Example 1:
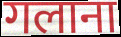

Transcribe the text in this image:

गलाना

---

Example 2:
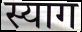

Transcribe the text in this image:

स्याग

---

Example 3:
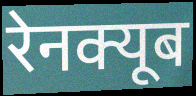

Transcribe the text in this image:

रेनक्यूब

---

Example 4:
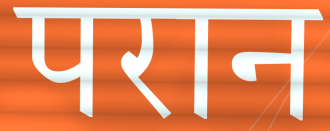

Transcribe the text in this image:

परान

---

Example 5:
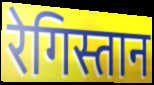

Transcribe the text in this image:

रेगिस्तान